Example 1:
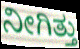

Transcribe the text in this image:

ನೀಗಿತ್ತು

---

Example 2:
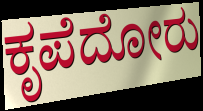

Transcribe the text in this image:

ಕೃಪೆದೋರು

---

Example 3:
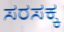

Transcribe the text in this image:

ಸರಸಕ್ಕ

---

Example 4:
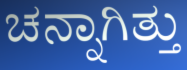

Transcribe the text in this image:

ಚನ್ನಾಗಿತ್ತು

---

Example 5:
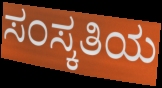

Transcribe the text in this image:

ಸಂಸ್ಕತಿಯ